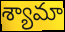
శ్యామా